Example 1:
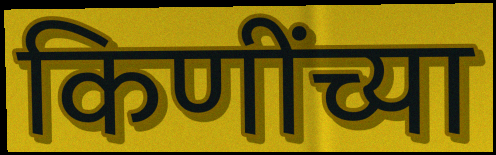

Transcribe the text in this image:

किणींच्या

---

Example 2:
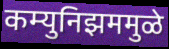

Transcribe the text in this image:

कम्युनिझममुळे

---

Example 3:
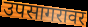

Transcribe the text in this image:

उपसागरावर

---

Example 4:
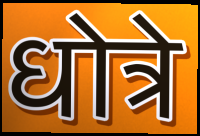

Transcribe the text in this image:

धोत्रे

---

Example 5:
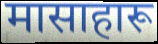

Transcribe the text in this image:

मासाहारू